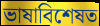
ভাষাবিশেষত